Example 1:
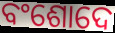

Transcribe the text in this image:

ବଂଶୋଦେ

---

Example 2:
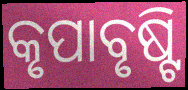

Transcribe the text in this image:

କୃପାବୃଷ୍ଟି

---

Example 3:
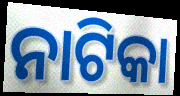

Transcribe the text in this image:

ନାଟିକା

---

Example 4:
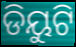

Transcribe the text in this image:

ଡିୟୁଟି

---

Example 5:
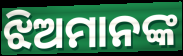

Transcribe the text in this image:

ଝିଅମାନଙ୍କ